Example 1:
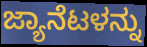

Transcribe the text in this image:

ಜ್ಯಾನೆಟಳನ್ನು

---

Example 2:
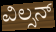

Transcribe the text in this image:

ವಿಲ್ಸನ್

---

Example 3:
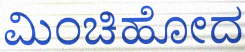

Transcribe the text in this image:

ಮಿಂಚಿಹೋದ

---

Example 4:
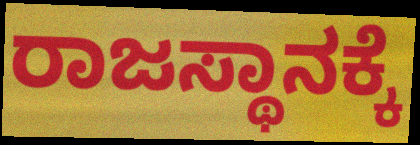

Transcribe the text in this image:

ರಾಜಸ್ಥಾನಕ್ಕೆ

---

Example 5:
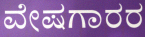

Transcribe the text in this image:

ವೇಷಗಾರರ